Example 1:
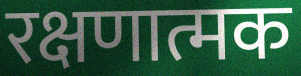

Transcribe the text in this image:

रक्षणात्मक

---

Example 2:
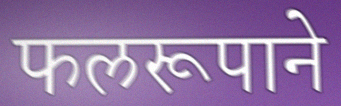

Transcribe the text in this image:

फलरूपाने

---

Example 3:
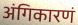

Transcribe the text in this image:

अंगिकारणं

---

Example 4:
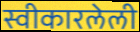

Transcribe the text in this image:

स्वीकारलेली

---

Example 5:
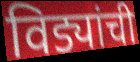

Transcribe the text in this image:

विड्यांची